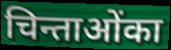
चिन्ताओंका